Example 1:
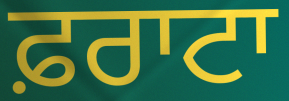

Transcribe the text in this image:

ਫ਼ਰਾਟਾ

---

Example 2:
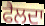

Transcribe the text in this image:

ਫੈਲਦਾ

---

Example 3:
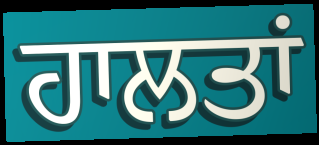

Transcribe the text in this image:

ਹਾਲਤਾਂ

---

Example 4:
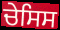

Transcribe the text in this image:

ਚੇਸਿਸ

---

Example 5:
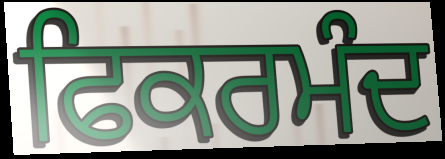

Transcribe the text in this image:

ਫਿਕਰਮੰਦ